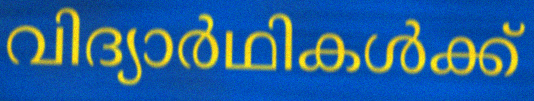
വിദ്യാർഥികൾക്ക്